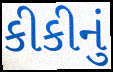
કીકીનું